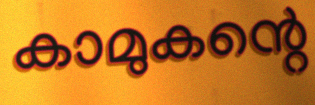
കാമുകന്റെ